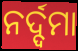
ନର୍ଦ୍ଦମା